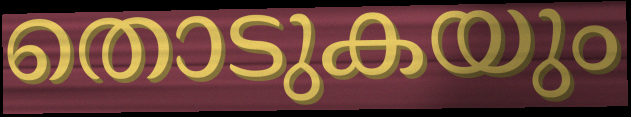
തൊടുകയും